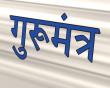
गुरूमंत्र